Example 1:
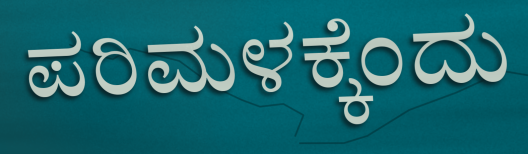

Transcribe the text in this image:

ಪರಿಮಳಕ್ಕೆಂದು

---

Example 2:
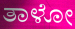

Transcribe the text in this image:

ತಾಳೋ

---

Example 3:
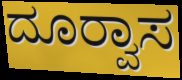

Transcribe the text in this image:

ದೂರ‍್ವಾಸ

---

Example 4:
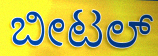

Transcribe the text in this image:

ಬೀಟಲ್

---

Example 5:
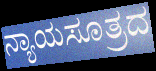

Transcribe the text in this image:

ನ್ಯಾಯಸೂತ್ರದ